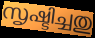
സൃഷ്ടിച്ചതു